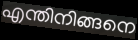
എന്തിനിങ്ങനെ